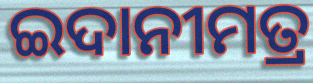
ଇଦାନୀମତ୍ର